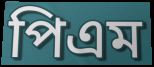
পিএম